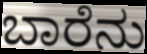
ಬಾರೆನು